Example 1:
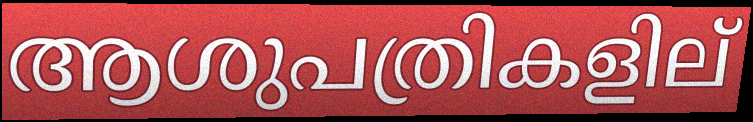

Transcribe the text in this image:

ആശുപത്രികളില്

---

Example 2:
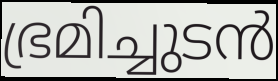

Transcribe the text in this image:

ഭ്രമിച്ചുടൻ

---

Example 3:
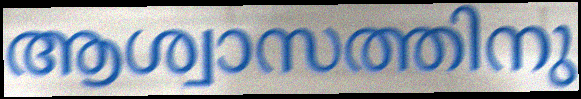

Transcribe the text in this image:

ആശ്വാസത്തിനു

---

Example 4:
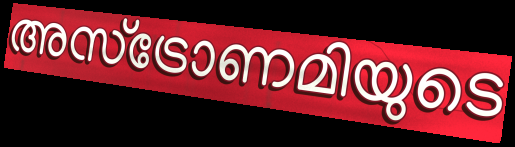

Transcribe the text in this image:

അസ്ട്രോണമിയുടെ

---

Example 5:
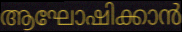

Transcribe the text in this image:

ആഘോഷിക്കാൻ